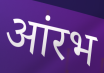
आंरभ